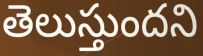
తెలుస్తుందని